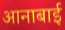
आनाबाई